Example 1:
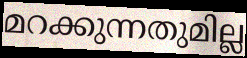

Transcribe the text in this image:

മറക്കുന്നതുമില്ല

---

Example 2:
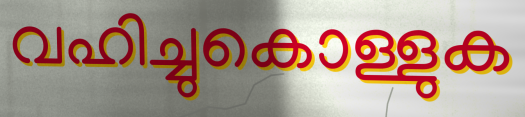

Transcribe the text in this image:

വഹിച്ചുകൊള്ളുക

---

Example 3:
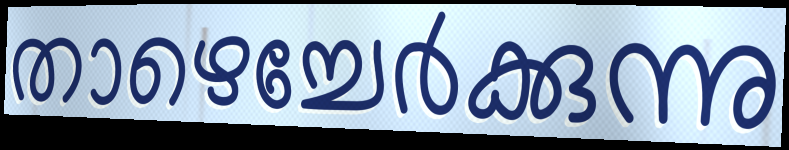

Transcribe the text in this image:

താഴെച്ചേർക്കുന്നു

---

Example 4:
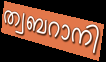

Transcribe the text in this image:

ത്വബറാനി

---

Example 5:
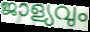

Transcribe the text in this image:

ജാള്യവും